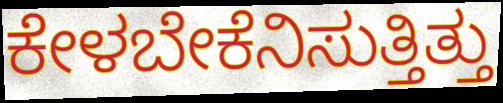
ಕೇಳಬೇಕೆನಿಸುತ್ತಿತ್ತು